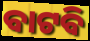
ବାଟବି